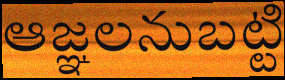
ఆజ్ఞలనుబట్టి